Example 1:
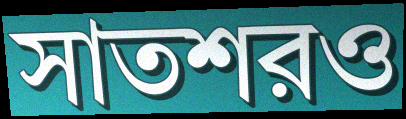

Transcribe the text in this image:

সাতশরও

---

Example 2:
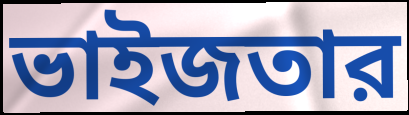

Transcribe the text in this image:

ভাইজতার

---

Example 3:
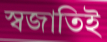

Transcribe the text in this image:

স্বজাতিই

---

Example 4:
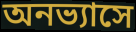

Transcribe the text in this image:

অনভ্যাসে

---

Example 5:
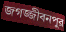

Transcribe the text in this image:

জগজ্জীবনপুর